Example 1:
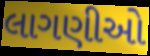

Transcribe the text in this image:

લાગણીઓ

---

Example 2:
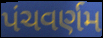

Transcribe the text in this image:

પંચવર્ણમ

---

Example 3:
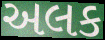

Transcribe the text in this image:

અલક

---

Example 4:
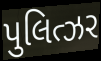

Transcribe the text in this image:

પુલિત્ઝર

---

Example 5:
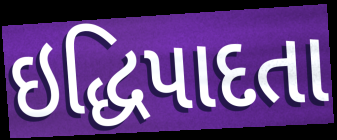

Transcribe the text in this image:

ઇદ્ધિપાદતા